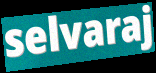
selvaraj